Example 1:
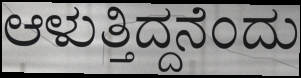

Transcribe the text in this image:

ಆಳುತ್ತಿದ್ದನೆಂದು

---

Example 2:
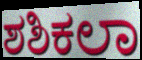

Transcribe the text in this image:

ಶಶಿಕಲಾ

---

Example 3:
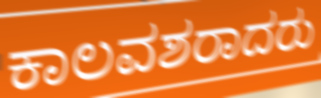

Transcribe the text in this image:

ಕಾಲವಶರಾದರು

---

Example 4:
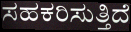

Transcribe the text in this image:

ಸಹಕರಿಸುತ್ತಿದೆ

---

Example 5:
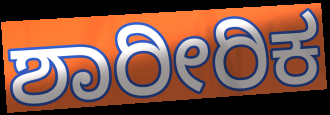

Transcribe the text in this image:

ಶಾರೀರಿಕ